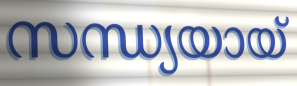
സന്ധ്യയായ്